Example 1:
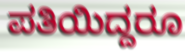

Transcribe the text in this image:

ಪತಿಯಿದ್ದರೂ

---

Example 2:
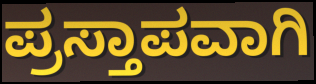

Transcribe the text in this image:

ಪ್ರಸ್ತಾಪವಾಗಿ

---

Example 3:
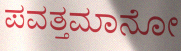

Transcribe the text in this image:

ಪವತ್ತಮಾನೋ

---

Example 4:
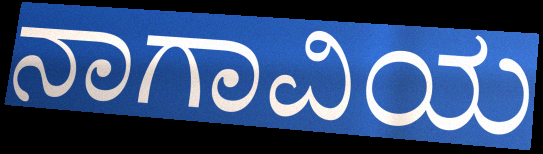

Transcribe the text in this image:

ನಾಗಾವಿಯ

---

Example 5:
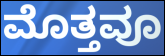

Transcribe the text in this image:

ಮೊತ್ತವೂ